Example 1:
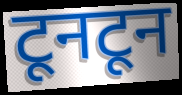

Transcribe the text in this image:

टूनटून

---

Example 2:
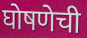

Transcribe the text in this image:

घोषणेची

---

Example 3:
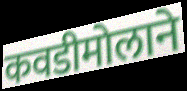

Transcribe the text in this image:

कवडीमोलाने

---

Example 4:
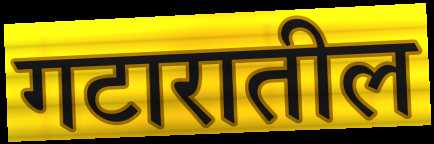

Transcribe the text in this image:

गटारातील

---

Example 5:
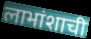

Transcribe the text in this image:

लाभांशाची